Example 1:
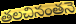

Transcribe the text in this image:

తలచినంతనె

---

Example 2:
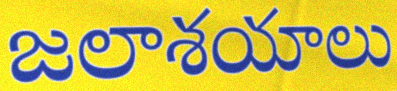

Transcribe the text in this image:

జలాశయాలు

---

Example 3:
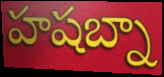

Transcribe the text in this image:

హషబ్నా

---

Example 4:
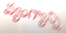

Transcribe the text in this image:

వ్యంగ్యాన్ని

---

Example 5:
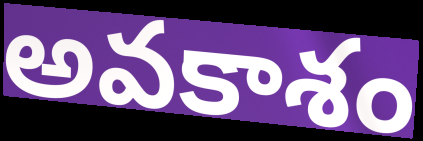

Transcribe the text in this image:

అవకాశం